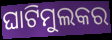
ଘାଟିମୁଲକର